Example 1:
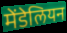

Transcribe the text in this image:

मेंडेलियन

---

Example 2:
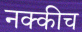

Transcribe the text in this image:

नक्कीच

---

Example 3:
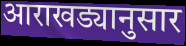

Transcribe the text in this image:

आराखड्यानुसार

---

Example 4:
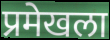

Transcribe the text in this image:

प्रमेखला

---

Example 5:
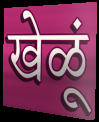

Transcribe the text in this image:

खेळूं